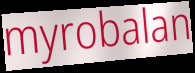
myrobalan